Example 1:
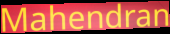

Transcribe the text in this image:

Mahendran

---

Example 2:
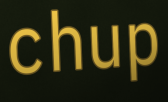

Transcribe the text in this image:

chup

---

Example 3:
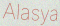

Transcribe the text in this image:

Alasya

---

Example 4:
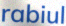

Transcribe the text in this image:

rabiul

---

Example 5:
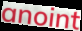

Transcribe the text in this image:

anoint